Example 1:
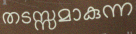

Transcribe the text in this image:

തടസ്സമാകുന്ന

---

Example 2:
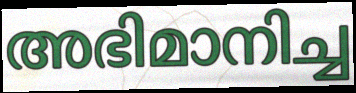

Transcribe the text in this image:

അഭിമാനിച്ച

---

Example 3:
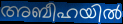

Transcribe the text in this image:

അബീഹയിൽ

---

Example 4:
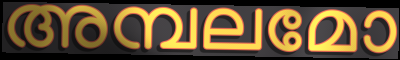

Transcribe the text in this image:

അമ്പലമോ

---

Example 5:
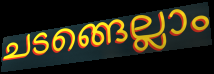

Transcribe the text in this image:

ചടങ്ങെല്ലാം